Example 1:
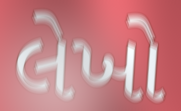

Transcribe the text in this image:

લેખો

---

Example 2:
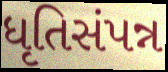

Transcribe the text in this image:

ધૃતિસંપન્ન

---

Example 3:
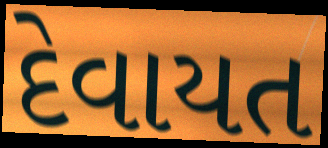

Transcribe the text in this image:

દેવાયત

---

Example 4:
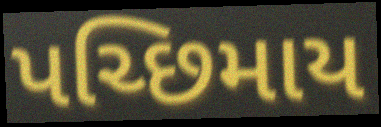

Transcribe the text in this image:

પચ્છિમાય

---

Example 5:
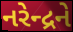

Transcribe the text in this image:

નરેન્દ્રને